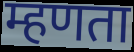
म्हणता